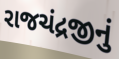
રાજચંદ્રજીનું